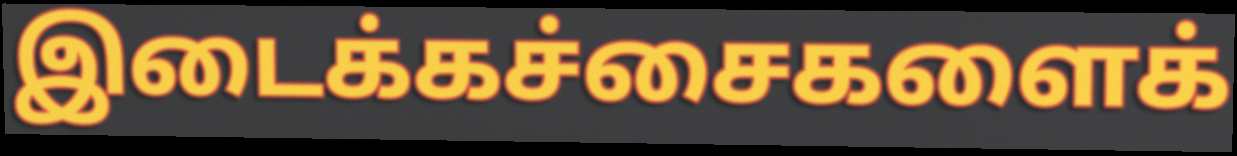
இடைக்கச்சைகளைக்